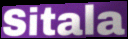
Sitala